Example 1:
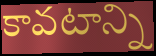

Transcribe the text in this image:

కావటాన్ని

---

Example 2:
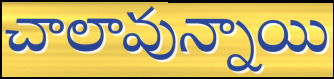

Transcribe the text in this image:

చాలావున్నాయి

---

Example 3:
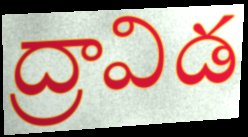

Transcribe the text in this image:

ద్రావిడ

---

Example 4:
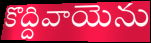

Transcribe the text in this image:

కొద్దివాయెను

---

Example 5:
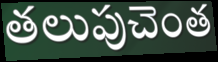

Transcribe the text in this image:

తలుపుచెంత